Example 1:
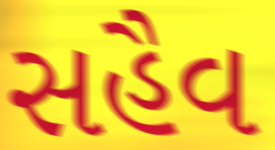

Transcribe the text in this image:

સહૈવ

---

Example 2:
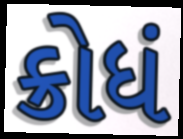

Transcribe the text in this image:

ક્રોધં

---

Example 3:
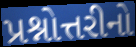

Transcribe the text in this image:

પ્રશ્નોત્તરીનો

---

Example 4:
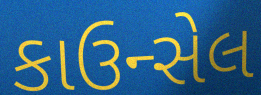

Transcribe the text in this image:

કાઉન્સેલ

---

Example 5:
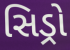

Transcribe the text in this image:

સિડ્રો